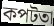
কপটতা